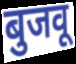
बुजवू